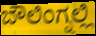
ಬೌಲಿಂಗ್ನಲ್ಲಿ